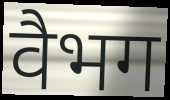
वैभग